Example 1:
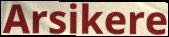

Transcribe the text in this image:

Arsikere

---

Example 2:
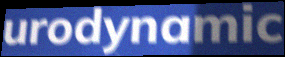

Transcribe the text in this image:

urodynamic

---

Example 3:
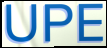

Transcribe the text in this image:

UPE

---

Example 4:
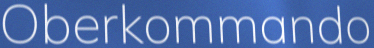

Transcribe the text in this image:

Oberkommando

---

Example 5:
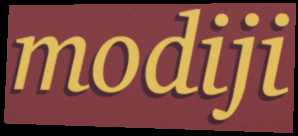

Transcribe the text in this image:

modiji